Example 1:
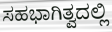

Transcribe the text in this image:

ಸಹಭಾಗಿತ್ವದಲ್ಲಿ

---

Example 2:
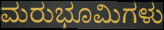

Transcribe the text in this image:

ಮರುಭೂಮಿಗಳು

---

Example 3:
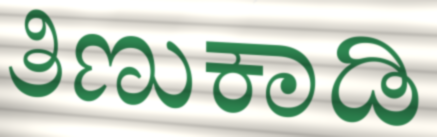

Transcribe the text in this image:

ತಿಣುಕಾಡಿ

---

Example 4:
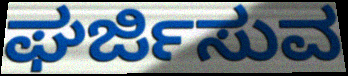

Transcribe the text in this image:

ಘರ್ಜಿಸುವ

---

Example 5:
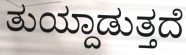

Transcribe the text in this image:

ತುಯ್ದಾಡುತ್ತದೆ